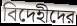
বিদেহীদের